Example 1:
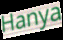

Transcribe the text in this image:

Hanya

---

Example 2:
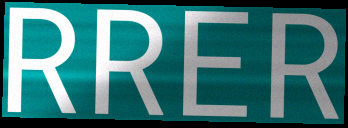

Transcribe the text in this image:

RRER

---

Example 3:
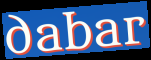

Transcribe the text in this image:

dabar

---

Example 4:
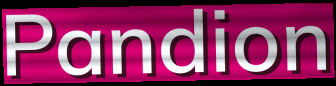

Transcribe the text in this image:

Pandion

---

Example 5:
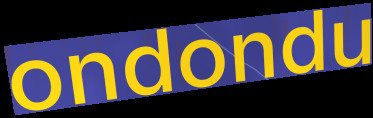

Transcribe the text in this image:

ondondu